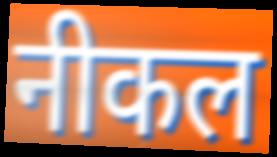
नीकल